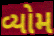
વ્યોમ